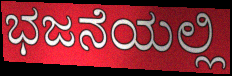
ಭಜನೆಯಲ್ಲಿ